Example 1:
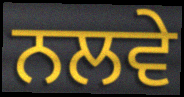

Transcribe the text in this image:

ਨਲਵੇ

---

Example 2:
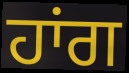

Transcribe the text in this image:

ਹਾਂਗ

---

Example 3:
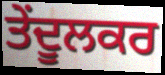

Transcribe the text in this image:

ਤੇਂਦੂਲਕਰ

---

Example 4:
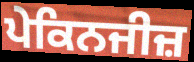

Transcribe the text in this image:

ਪੇਕਿਨਜੀਜ਼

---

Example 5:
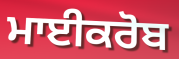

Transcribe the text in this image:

ਮਾਈਕਰੋਬ